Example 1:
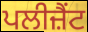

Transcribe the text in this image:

ਪਲੀਜ਼ੈਂਟ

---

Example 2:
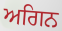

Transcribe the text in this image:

ਅਗਿਨ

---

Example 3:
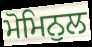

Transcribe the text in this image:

ਮੋਮਿਨੁਲ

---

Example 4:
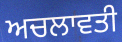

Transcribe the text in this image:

ਅਚਲਾਵਤੀ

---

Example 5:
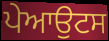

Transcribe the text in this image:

ਪੇਆਉਟਸ